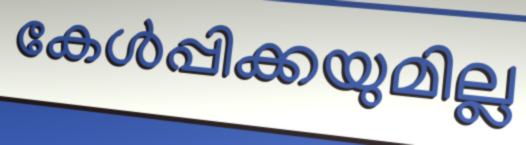
കേൾപ്പിക്കയുമില്ല